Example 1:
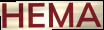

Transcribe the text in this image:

HEMA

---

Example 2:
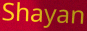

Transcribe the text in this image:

Shayan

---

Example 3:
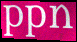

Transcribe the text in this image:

ppn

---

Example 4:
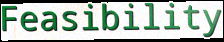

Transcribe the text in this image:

Feasibility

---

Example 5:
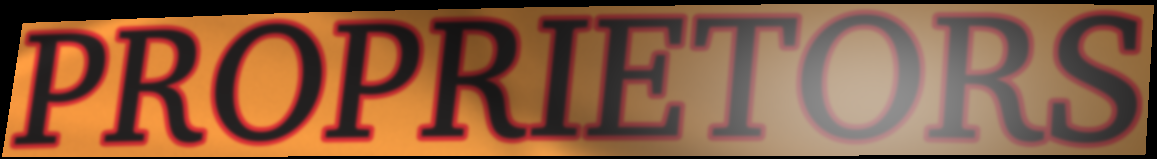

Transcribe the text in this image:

PROPRIETORS